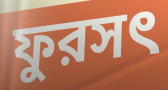
ফুরসৎ